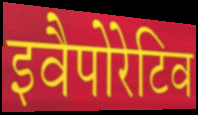
इवैपोरेटिव